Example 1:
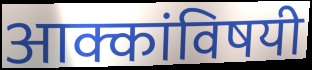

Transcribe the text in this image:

आक्कांविषयी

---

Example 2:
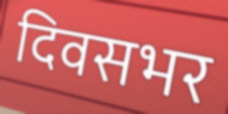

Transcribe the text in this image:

दिवसभर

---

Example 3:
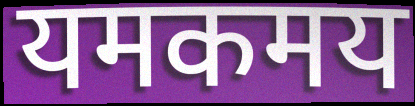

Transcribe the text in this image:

यमकमय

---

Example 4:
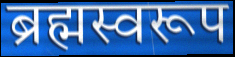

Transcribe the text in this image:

ब्रह्मस्वरूप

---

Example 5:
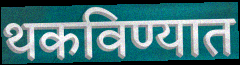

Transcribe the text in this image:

थकविण्यात